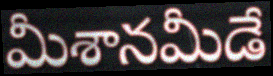
మీశానమీడే